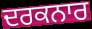
ਦਰਕਨਾਰ